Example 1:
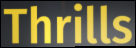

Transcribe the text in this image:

Thrills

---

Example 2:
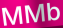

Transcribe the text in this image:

MMb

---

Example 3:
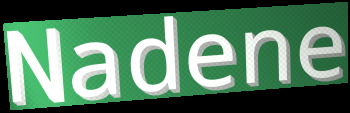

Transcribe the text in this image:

Nadene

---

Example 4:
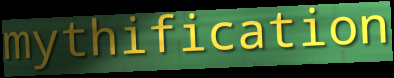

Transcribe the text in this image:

mythification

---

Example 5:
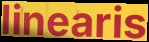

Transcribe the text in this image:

linearis